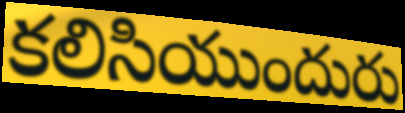
కలిసియుందురు